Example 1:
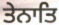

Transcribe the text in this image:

ਤੇਨਾਤਿ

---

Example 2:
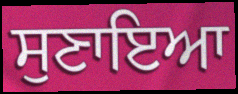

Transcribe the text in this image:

ਸੁਣਾਇਆ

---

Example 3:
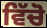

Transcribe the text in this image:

ਵਿੱਚੋ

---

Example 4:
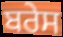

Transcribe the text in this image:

ਬਰੇਸ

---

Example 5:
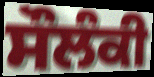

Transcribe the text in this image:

ਸੌਲੰਕੀ